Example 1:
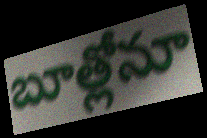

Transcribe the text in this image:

బూత్లోనూ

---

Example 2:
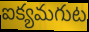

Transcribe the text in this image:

ఐక్యమగుట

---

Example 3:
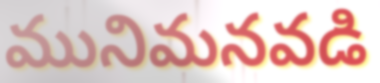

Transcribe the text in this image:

మునిమనవడి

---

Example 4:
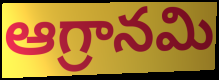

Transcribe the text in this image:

ఆగ్రానమి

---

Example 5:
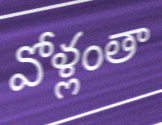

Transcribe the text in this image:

వోళ్లంతా